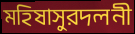
মহিষাসুরদলনী